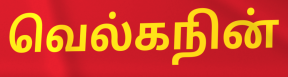
வெல்கநின்